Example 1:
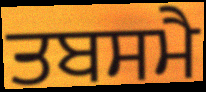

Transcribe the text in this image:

ਤਬਸਮੈ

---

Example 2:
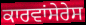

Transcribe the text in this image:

ਕਾਰਵਾਂਸੇਰੇਸ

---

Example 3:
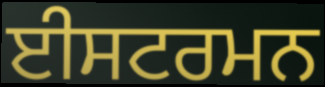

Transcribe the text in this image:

ਈਸਟਰਮਨ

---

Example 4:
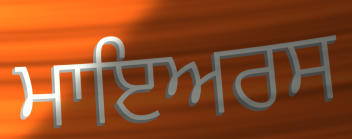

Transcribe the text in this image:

ਮਾਇਅਰਸ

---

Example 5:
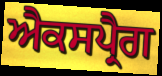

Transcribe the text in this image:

ਐਕਸਪ੍ਰੈਗ